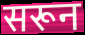
सरून